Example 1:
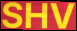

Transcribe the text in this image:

SHV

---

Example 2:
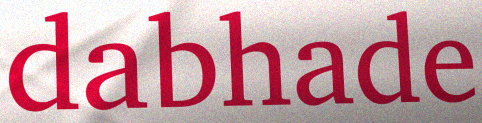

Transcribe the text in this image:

dabhade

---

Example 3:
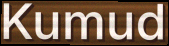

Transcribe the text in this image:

Kumud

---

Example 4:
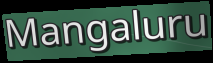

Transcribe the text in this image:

Mangaluru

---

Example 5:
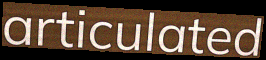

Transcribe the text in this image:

articulated